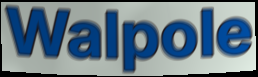
Walpole